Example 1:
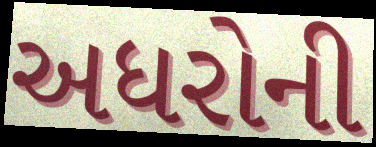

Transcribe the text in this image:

અધરોની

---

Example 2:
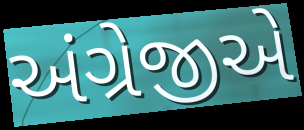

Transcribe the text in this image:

અંગ્રેજીએ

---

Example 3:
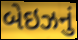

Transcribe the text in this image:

બેઇઝનું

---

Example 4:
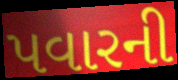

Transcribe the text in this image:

પવારની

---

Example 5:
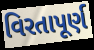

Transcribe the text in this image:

વિરતાપૂર્ણ